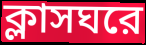
ক্লাসঘরে